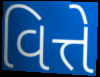
વિત્તે